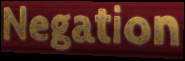
Negation